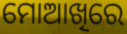
ମୋଆଖିରେ